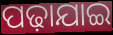
ପଢ଼ାଯାଇ